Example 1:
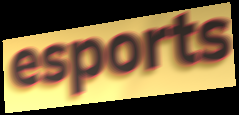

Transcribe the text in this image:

esports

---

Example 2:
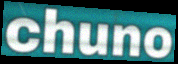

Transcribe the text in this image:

chuno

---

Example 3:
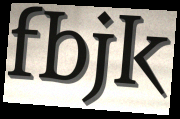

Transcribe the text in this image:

fbjk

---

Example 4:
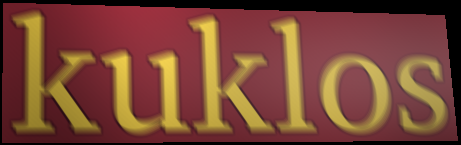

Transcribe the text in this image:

kuklos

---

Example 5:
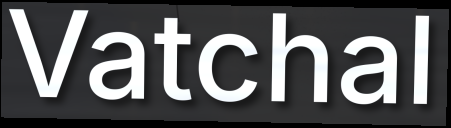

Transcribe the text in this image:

Vatchal